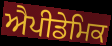
ਐਪੀਡੇਮਿਕ